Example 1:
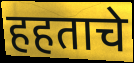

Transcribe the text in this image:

हहताचे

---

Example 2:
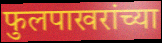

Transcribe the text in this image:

फुलपाखरांच्या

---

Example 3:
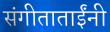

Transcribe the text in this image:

संगीताताईंनी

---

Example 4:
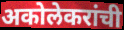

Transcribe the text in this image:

अकोलेकरांची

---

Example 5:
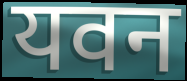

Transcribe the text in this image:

यवन